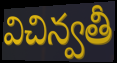
విచిన్వతీ